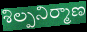
శిల్పనిర్మాణ